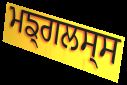
ਮਙ੍ਗਲਸ੍ਸ